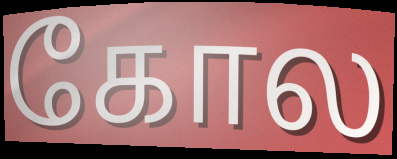
கோல